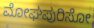
ಮೋಘಪುರಿಸೋ